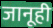
जानूही